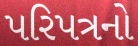
પરિપત્રનો